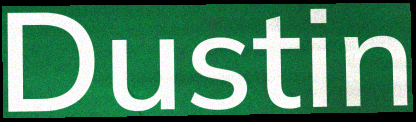
Dustin